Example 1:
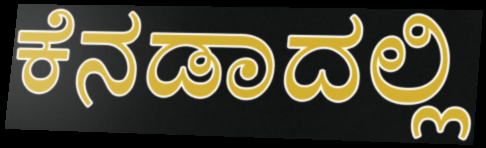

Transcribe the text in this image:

ಕೆನಡಾದಲ್ಲಿ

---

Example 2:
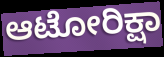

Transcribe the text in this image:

ಆಟೋರಿಕ್ಷಾ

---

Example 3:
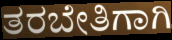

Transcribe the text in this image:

ತರಬೇತಿಗಾಗಿ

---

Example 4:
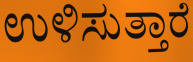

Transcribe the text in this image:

ಉಳಿಸುತ್ತಾರೆ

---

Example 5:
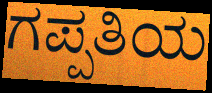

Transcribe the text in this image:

ಗಪ್ಪತಿಯ